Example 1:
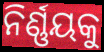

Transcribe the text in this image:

ନିର୍ଣ୍ଣୟକୁ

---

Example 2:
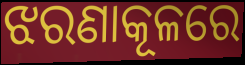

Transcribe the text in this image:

ଝରଣାକୂଳରେ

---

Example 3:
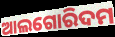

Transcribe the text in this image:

ଆଲଗୋରିଦମ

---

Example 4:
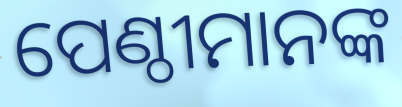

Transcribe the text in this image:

ପେଣ୍ଠୀମାନଙ୍କ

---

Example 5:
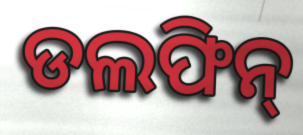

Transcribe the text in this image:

ଡଲଫିନ୍